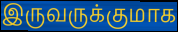
இருவருக்குமாக